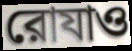
রোযাও